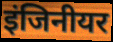
इंजिनीयर